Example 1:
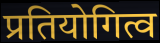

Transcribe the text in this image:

प्रतियोगित्व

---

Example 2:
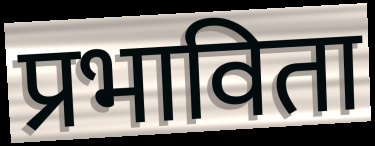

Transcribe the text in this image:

प्रभाविता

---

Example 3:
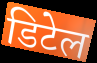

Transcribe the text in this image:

डिटेल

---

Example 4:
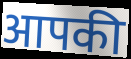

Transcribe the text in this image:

आपकी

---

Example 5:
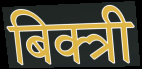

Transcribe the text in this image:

बिक्त्री